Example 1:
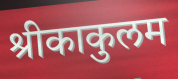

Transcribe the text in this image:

श्रीकाकुलम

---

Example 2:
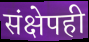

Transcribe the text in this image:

संक्षेपही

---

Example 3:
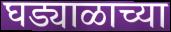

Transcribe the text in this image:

घड्याळाच्या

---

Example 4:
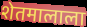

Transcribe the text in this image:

शेतमालाला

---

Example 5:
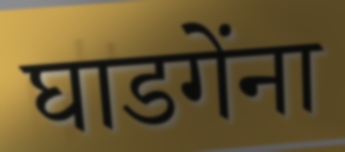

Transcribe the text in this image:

घाडगेंना